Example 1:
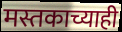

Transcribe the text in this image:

मस्तकाच्याही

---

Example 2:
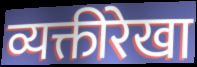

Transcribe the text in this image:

व्यक्तीरेखा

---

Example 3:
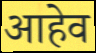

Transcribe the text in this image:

आहेव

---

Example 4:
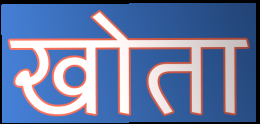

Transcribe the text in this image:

खोता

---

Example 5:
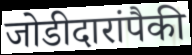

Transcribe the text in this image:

जोडीदारांपैकी